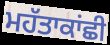
ਮਹੱਤਾਕਾਂਛੀ